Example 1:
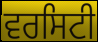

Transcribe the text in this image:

ਵਰਸਿਟੀ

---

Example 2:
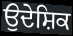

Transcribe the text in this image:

ਉਦੇਸ਼ਿਕ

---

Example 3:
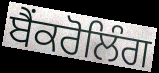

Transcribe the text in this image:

ਬੈਂਕਰੋਲਿੰਗ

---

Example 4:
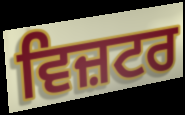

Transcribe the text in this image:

ਵਿਜ਼ਟਰ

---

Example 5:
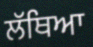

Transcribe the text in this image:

ਲੱਥਿਆ